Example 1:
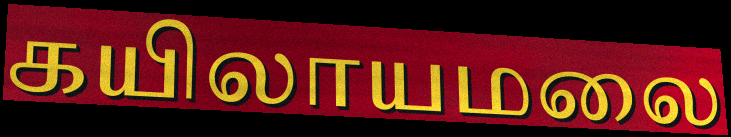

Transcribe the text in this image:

கயிலாயமலை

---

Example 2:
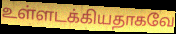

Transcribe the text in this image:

உள்ளடக்கியதாகவே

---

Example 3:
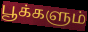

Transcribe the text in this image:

பூக்களும்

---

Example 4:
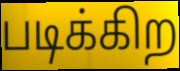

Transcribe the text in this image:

படிக்கிற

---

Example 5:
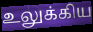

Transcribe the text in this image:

உலுக்கிய